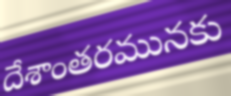
దేశాంతరమునకు